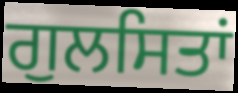
ਗੁਲਸਿਤਾਂ